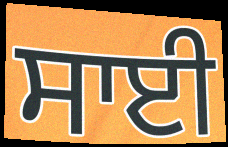
ਸਾਈ